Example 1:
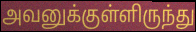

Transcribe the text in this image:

அவனுக்குள்ளிருந்து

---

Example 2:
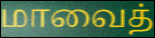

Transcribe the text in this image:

மாவைத்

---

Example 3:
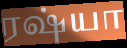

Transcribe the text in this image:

ரஷ்யா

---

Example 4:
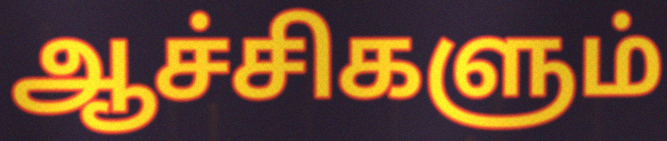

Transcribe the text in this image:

ஆச்சிகளும்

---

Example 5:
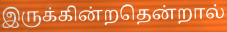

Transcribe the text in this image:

இருக்கின்றதென்றால்